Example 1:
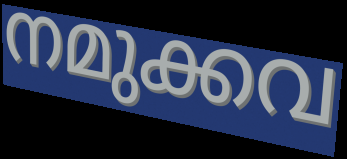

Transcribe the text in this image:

നമുക്കവ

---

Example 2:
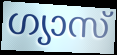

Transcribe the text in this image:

ഗ്യാസ്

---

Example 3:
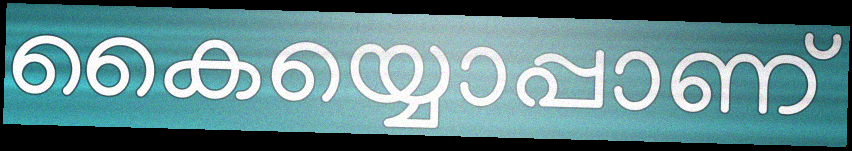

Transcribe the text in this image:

കൈയ്യൊപ്പാണ്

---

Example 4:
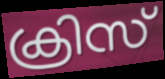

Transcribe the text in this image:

ക്രിസ്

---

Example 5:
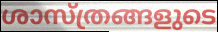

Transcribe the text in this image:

ശാസ്ത്രങ്ങളുടെ